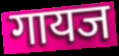
गायज